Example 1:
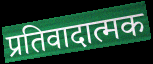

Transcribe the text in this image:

प्रतिवादात्मक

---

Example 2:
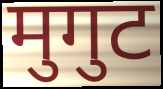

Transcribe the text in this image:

मुगुट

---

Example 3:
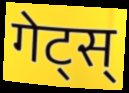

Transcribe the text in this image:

गेट्स्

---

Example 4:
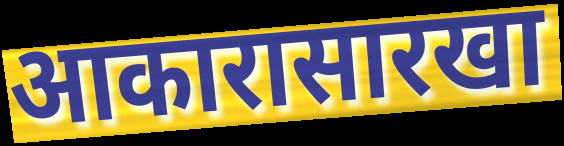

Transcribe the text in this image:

आकारासारखा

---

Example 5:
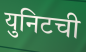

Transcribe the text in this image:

युनिटची